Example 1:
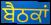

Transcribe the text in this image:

ਬੈਠਕਾਂ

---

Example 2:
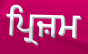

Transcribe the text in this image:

ਪ੍ਰਿਜ਼ਮ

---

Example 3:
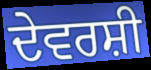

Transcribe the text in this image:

ਦੇਵਰਸ਼ੀ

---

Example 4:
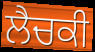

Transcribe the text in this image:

ਲੈਚਕੀ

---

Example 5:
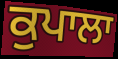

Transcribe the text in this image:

ਕੁਪਾਲਾ